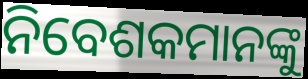
ନିବେଶକମାନଙ୍କୁ